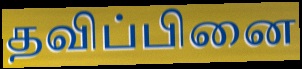
தவிப்பினை